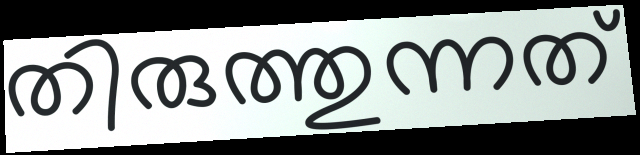
തിരുത്തുന്നത്